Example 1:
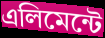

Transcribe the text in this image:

এলিমেন্টে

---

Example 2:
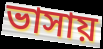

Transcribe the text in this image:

ভাসায়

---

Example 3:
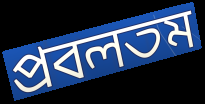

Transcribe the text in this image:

প্রবলতম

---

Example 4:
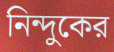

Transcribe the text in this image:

নিন্দুকের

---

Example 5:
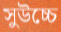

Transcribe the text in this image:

সুউচ্চে